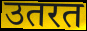
उतरत